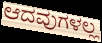
ಆದವುಗಳಲ್ಲ